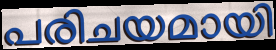
പരിചയമായി